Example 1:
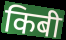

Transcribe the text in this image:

किबी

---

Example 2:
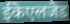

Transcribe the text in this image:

ईकेएलजेड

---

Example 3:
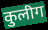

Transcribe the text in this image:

कुलीग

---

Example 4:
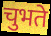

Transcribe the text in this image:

चुभते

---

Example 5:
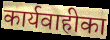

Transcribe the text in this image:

कार्यवाहीका